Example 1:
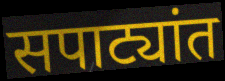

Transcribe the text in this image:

सपाट्यांत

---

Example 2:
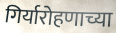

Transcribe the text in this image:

गिर्यारोहणाच्या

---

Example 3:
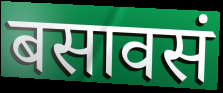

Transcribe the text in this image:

बसावसं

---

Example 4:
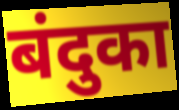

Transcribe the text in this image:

बंदुका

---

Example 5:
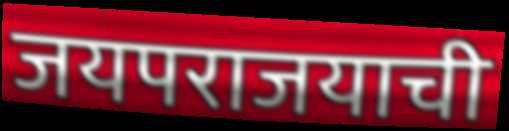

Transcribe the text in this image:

जयपराजयाची